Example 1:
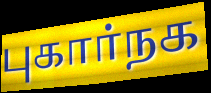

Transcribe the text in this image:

புகார்நக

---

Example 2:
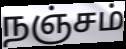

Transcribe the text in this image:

நஞ்சம்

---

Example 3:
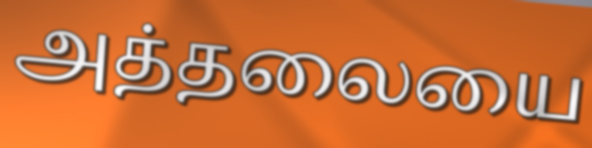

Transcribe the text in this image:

அத்தலையை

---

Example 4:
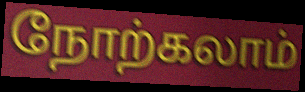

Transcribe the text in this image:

நோற்கலாம்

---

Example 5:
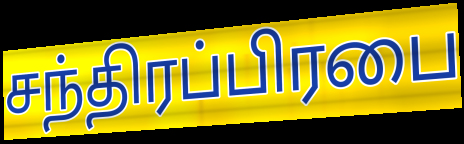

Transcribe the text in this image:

சந்திரப்பிரபை